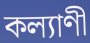
কল্যাণী